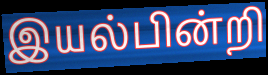
இயல்பின்றி